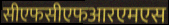
सीएफसीएफआरएमएस